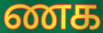
ணக